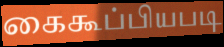
கைகூப்பியபடி